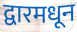
द्वारमधून